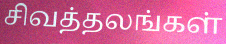
சிவத்தலங்கள்